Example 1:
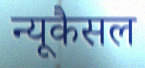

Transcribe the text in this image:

न्यूकैसल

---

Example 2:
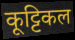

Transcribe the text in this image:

कूट्टिकल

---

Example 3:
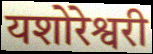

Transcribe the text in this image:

यशोरेश्वरी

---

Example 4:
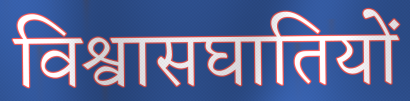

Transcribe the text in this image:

विश्वासघातियों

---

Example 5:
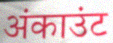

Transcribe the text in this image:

अंकाउंट